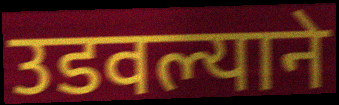
उडवल्याने